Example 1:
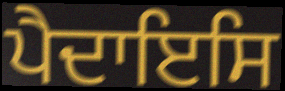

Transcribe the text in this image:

ਪੈਦਾਇਸਿ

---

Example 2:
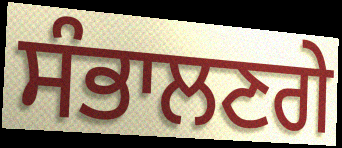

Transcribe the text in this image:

ਸੰਭਾਲਣਗੇ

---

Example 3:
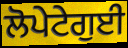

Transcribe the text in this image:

ਲੋਪੇਟੇਗੁਈ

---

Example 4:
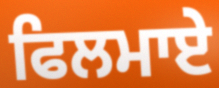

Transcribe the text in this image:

ਫਿਲਮਾਏ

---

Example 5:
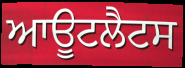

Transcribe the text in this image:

ਆਊਟਲੈਟਸ